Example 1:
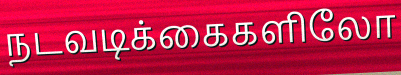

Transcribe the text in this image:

நடவடிக்கைகளிலோ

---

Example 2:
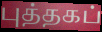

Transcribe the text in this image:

புத்தகப்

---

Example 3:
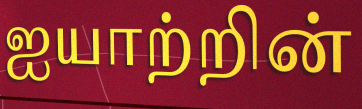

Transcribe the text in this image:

ஐயாற்றின்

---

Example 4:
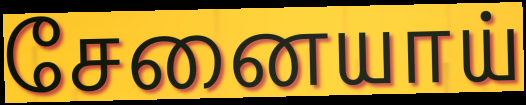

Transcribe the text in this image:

சேனையாய்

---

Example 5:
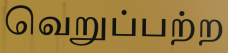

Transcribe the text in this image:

வெறுப்பற்ற